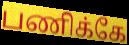
பணிக்கே